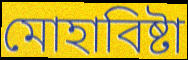
মোহাবিষ্টা